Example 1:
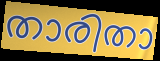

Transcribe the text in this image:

താരിതാ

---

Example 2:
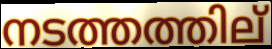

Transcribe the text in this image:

നടത്തത്തില്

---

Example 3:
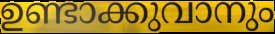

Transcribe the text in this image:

ഉണ്ടാക്കുവാനും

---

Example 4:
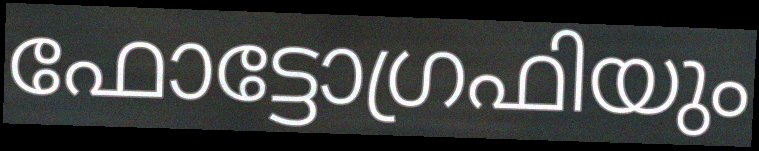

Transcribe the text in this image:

ഫോട്ടോഗ്രഫിയും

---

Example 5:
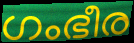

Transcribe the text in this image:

ഗംഭീര